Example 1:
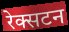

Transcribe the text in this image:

रेक्सटन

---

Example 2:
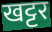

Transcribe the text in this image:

खट्टर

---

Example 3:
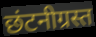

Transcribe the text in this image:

छंटनीग्रस्त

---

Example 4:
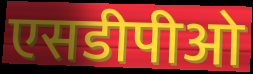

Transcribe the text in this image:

एसडीपीओ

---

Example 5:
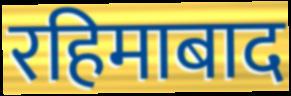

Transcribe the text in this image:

रहिमाबाद